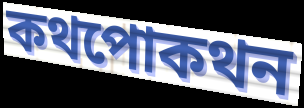
কথপোকথন